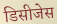
डिसीजेस